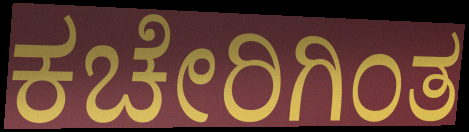
ಕಚೇರಿಗಿಂತ